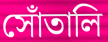
সোঁতালি